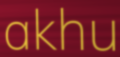
akhu